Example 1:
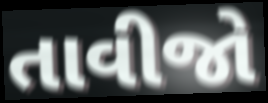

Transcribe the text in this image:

તાવીજો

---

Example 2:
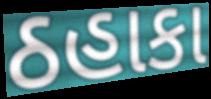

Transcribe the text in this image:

ઠહાકા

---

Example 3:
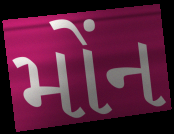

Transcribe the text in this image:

મોંન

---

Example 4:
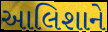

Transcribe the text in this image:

આલિશાને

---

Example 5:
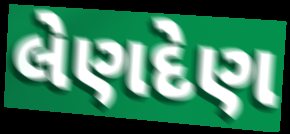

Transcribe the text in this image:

લેણદેણ